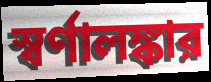
স্বর্ণালঙ্কার